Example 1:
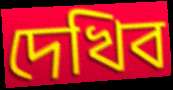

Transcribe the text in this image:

দেখিব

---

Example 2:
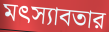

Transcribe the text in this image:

মৎস্যাবতার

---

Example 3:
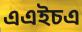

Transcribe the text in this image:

এএইচএ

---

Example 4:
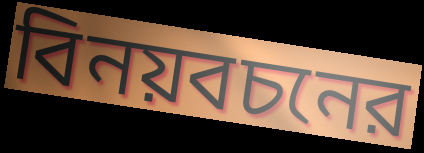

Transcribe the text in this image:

বিনয়বচনের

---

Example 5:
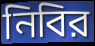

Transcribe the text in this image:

নিবির